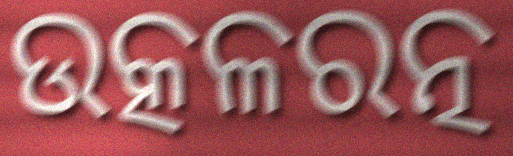
ଉତ୍କଳରତ୍ନ